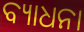
ବ୍ୟାଧନା